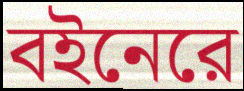
বইনেরে